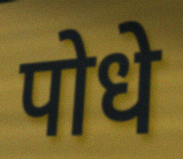
पोधे